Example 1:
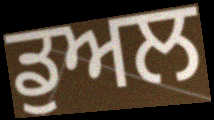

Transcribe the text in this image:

ਡੁਅਲ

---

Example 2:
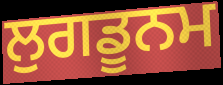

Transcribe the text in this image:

ਲੁਗਡੂਨਮ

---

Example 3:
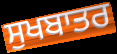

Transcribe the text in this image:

ਸੁਖਬਾਤਰ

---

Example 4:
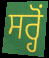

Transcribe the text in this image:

ਸਰ੍ਹੋਂ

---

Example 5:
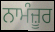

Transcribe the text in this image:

ਨਾਮੰਜ਼ੂਰ